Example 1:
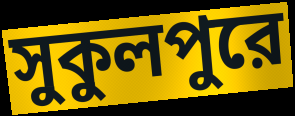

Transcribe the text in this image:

সুকুলপুরে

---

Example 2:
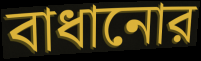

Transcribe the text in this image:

বাধানোর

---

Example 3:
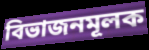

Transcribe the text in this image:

বিভাজনমূলক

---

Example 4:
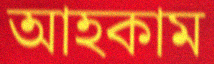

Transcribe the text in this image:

আহকাম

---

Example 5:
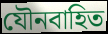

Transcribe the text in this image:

যৌনবাহিত